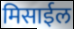
मिसाईल